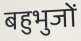
बहुभुजों